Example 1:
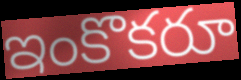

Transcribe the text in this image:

ఇంకొకరూ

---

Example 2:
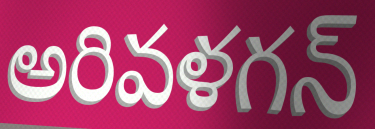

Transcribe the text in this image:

అరివళగన్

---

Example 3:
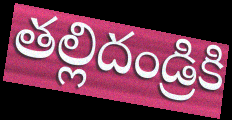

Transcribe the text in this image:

తల్లిదండ్రికి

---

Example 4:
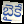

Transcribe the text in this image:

బైకే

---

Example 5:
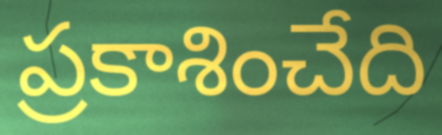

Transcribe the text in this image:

ప్రకాశించేది